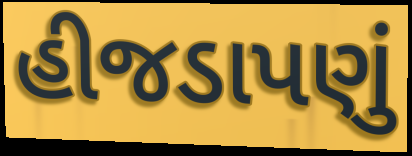
હીજડાપણું